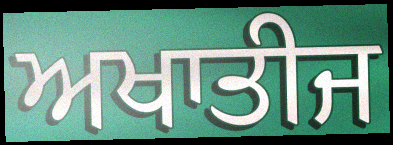
ਅਖਾਤੀਜ